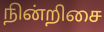
நின்றிசை